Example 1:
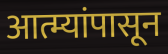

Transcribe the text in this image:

आत्म्यांपासून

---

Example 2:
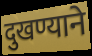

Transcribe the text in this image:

दुखण्याने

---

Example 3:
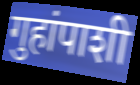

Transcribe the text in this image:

गुहांपाशी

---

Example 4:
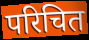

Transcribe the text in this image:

परिचित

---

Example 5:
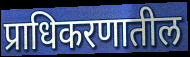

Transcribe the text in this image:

प्राधिकरणातील